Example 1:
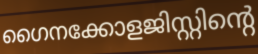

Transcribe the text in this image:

ഗൈനക്കോളജിസ്റ്റിന്റെ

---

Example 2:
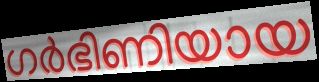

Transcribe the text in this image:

ഗർഭിണിയായ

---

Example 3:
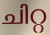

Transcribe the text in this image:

ചിറ്റ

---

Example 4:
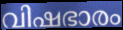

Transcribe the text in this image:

വിഷഭാരം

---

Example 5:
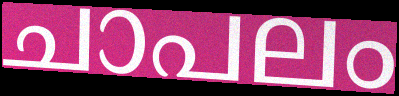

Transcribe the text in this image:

ചാപലം